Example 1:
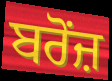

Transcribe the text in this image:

ਬਰੋਂਜ਼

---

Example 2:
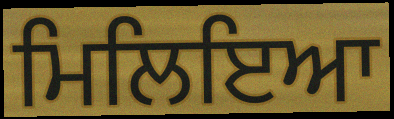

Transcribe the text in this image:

ਮਿਲਿਇਆ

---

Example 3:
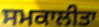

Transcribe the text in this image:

ਸਮਕਾਲੀਤਾ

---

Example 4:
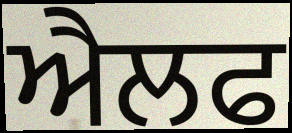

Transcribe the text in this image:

ਐਲਫ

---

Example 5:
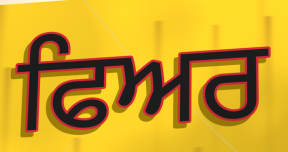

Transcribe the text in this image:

ਫਿਅਰ